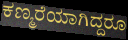
ಕಣ್ಮರೆಯಾಗಿದ್ದರೂ